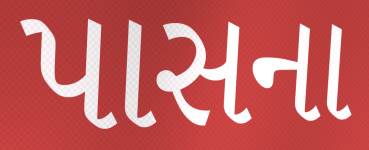
પાસના